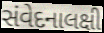
સંવેદનાલક્ષી